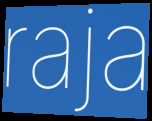
raja